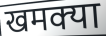
खमक्या